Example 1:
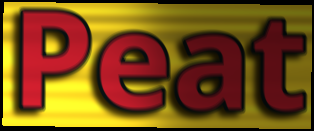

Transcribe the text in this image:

Peat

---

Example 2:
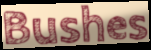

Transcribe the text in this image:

Bushes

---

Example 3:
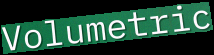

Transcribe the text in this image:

Volumetric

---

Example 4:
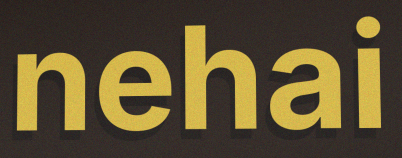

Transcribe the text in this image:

nehai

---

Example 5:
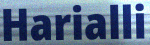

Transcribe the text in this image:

Harialli